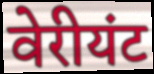
वेरीयंट